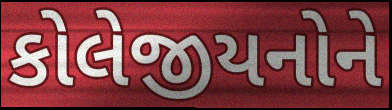
કોલેજીયનોને